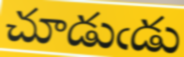
చూడుఁడు